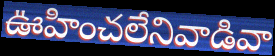
ఊహించలేనివాడివా